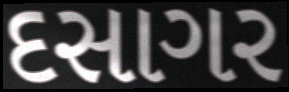
દસાગર